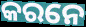
କରନେ